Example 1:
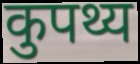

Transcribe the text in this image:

कुपथ्य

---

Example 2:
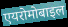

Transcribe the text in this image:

एयरोमोबाइल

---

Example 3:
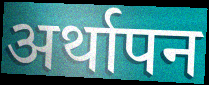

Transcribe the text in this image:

अर्थापन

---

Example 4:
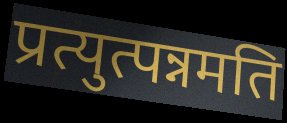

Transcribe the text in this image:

प्रत्युत्पन्नमति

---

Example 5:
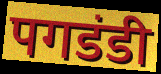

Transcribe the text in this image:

पगडंडी